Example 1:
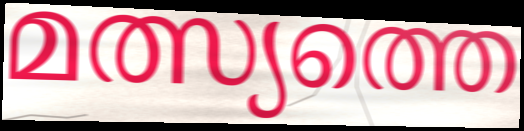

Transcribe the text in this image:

മത്സ്യത്തെ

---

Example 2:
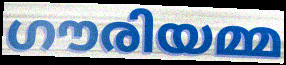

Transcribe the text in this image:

ഗൗരിയമ്മ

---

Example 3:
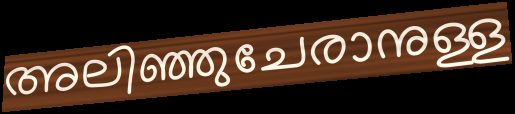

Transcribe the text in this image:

അലിഞ്ഞുചേരാനുള്ള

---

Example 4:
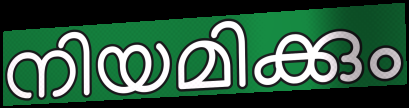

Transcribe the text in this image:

നിയമിക്കും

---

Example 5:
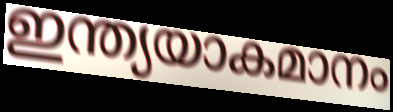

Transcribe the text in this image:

ഇന്ത്യയാകമാനം